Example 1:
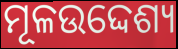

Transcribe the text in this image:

ମୂଳଉଦ୍ଦେଶ୍ୟ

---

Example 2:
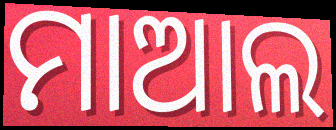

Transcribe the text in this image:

ମାଆଲ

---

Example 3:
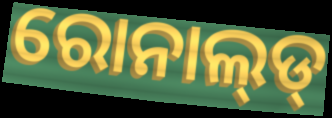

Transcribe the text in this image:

ରୋନାଲ୍‌ଡ୍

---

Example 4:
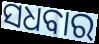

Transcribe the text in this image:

ସଧବାର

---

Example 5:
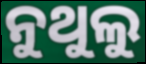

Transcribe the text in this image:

ନୁଥୁଲୁ